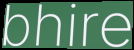
bhire